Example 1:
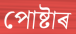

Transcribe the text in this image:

পোষ্টাৰ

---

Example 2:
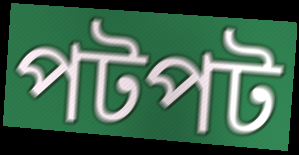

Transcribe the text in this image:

পটপট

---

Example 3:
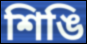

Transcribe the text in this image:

শিঙি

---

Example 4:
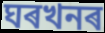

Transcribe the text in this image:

ঘৰখনৰ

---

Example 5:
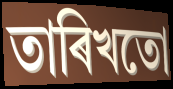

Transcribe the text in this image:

তাৰিখতো